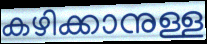
കഴിക്കാനുള്ള